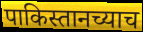
पाकिस्तानच्याच